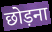
छोड़ना